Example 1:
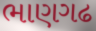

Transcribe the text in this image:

ભાણગઢ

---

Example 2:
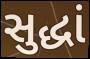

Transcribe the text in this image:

સુદ્ધાં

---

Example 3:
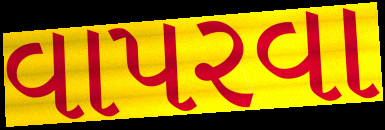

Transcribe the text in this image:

વાપરવા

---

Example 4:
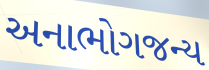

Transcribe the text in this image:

અનાભોગજન્ય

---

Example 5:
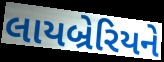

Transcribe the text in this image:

લાયબ્રેરિયને